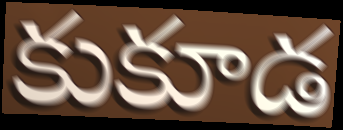
కుకూడ